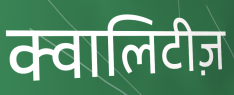
क्वालिटीज़